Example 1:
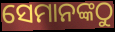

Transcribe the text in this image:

ସେମାନଙ୍କଠୁ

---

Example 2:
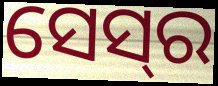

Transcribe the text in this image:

ସେସ୍‌ର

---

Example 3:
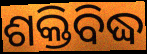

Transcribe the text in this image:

ଶକ୍ତିବିଦ୍ଧ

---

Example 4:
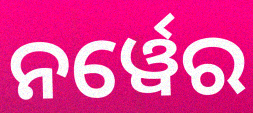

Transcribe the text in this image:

ନର୍ୱେର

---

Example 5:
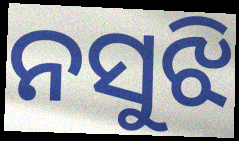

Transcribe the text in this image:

ନସୁଝି